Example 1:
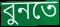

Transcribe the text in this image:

বুনতে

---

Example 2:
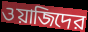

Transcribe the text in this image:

ওয়াজিদের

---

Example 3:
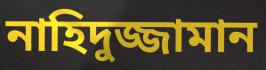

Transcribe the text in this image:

নাহিদুজ্জামান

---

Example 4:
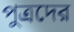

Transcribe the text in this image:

পুত্রদের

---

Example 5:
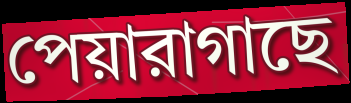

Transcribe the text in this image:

পেয়ারাগাছে